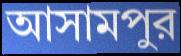
আসামপুর